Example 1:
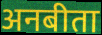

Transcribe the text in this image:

अनबीता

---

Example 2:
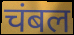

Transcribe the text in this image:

चंबल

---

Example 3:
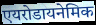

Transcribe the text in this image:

एयरोडायनेमिक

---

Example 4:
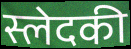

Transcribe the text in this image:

स्लेदकी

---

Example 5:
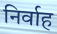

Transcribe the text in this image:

निर्वाह